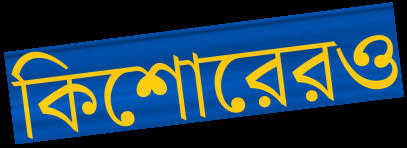
কিশোরেরও